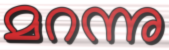
മറന്നു